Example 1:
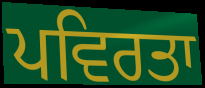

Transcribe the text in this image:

ਪਵਿਰਤਾ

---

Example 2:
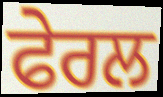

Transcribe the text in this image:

ਫੇਰਲ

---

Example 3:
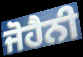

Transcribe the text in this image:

ਜੋਹੈਨੀ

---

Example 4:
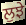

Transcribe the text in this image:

ਲੁਝੇ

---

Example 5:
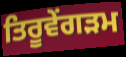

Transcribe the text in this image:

ਤਿਰੂਵੇਂਗੜਮ